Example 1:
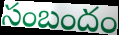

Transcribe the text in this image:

సంబందం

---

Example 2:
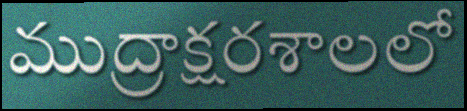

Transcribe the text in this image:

ముద్రాక్షరశాలలో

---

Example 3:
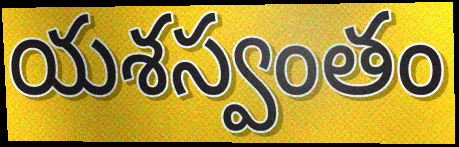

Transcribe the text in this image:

యశస్వంతం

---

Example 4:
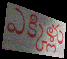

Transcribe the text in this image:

ఎక్కిళ్లు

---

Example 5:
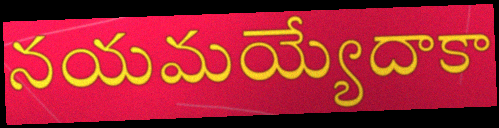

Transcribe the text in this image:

నయమయ్యేదాకా